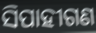
ସିପାହୀଗଣ